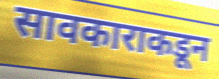
सावकाराकडून